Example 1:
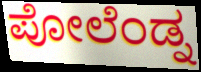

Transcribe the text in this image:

ಪೋಲೆಂಡ್ನ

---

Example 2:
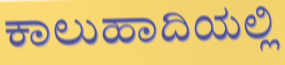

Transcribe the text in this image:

ಕಾಲುಹಾದಿಯಲ್ಲಿ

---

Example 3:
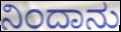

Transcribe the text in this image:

ನಿಂದಾನು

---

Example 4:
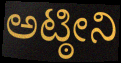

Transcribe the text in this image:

ಅಟ್ಠೀನಿ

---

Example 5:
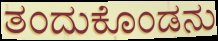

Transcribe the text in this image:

ತಂದುಕೊಂಡನು